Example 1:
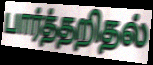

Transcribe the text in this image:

பார்த்தறிதல்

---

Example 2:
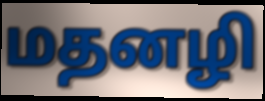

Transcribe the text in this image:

மதனழி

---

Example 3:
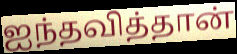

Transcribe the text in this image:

ஐந்தவித்தான்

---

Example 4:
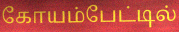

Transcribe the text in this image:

கோயம்பேட்டில்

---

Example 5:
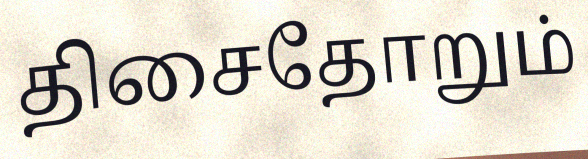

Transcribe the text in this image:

திசைதோறும்